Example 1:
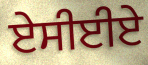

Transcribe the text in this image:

ਏਸੀਈਏ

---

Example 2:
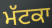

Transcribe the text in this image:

ਮੱਟਕਾ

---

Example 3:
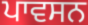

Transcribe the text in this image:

ਪਾਵਸਨ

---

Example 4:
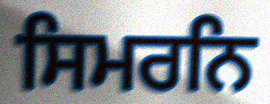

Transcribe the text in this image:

ਸਿਮਰਨਿ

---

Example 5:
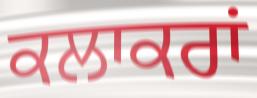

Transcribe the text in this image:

ਕਲਾਕਰਾਂ